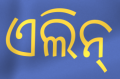
ଏଲିନ୍